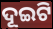
ଦୂଇଟି